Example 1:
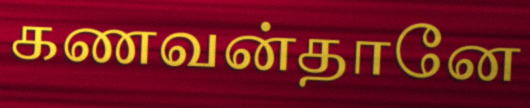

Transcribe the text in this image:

கணவன்தானே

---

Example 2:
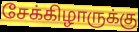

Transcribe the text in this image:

சேக்கிழாருக்கு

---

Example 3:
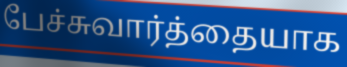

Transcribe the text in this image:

பேச்சுவார்த்தையாக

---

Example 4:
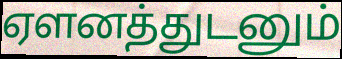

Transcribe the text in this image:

ஏளனத்துடனும்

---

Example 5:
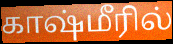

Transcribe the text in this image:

காஷ்மீரில்